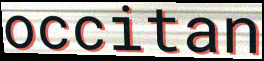
occitan